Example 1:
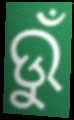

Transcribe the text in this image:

ଉୁଁ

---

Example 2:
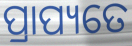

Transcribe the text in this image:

ପ୍ରାପ୍ୟତେ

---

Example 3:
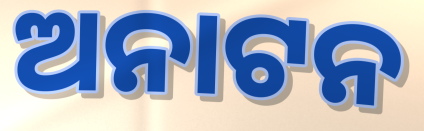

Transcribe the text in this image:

ଅନାଟନ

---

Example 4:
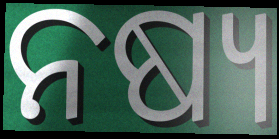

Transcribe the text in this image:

ନଷ୍ଯ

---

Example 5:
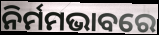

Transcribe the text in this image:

ନିର୍ମମଭାବରେ